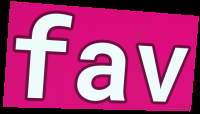
fav